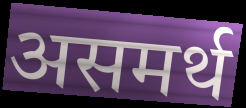
असमर्थ